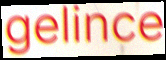
gelince